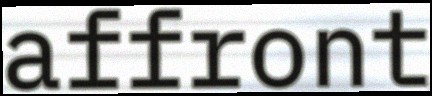
affront